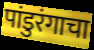
पांडुरंगाचा